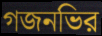
গজনভির